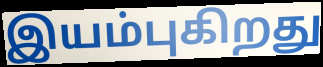
இயம்புகிறது